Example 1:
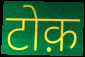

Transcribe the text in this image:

टोक़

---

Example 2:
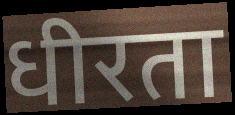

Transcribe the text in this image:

धीरता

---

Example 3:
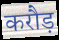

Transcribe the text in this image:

करौड़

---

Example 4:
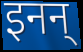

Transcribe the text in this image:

इनन्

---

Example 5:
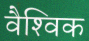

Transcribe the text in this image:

वैश्‍विक